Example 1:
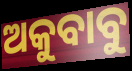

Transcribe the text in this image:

ଅକୁବାବୁ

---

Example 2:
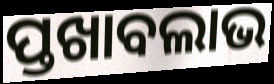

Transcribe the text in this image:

ପ୍ତଖାବଲାଭ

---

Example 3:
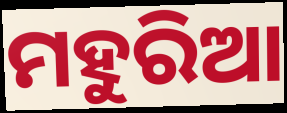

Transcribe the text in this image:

ମହୁରିଆ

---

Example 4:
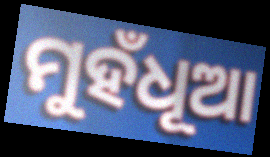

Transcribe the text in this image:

ମୁହଁଧୂଆ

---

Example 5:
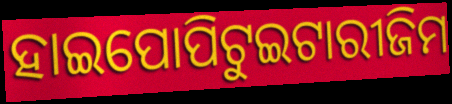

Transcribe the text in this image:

ହାଇପୋପିଟୁଇଟାରୀଜିମ